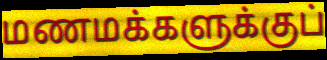
மணமக்களுக்குப்